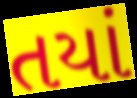
તયાં